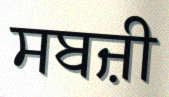
ਸਬਜ਼ੀ